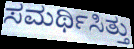
ಸಮರ್ಥಿಸಿತ್ತು